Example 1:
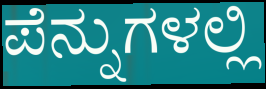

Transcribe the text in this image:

ಪೆನ್ನುಗಳಲ್ಲಿ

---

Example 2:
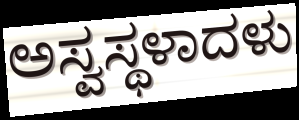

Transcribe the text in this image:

ಅಸ್ವಸ್ಥಳಾದಳು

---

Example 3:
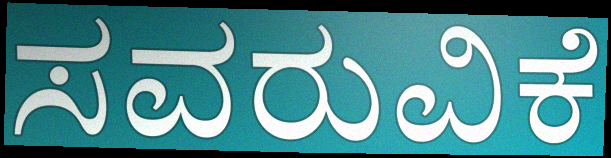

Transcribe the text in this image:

ಸವರುವಿಕೆ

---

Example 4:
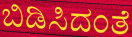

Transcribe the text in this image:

ಬಿಡಿಸಿದಂತೆ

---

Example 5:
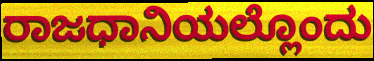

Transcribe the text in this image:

ರಾಜಧಾನಿಯಲ್ಲೊಂದು